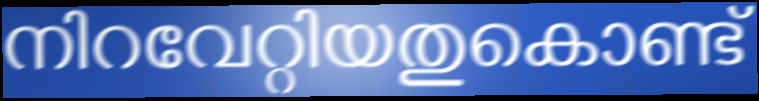
നിറവേറ്റിയതുകൊണ്ട്